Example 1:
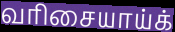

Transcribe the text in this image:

வரிசையாய்க்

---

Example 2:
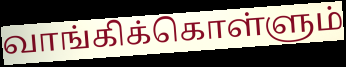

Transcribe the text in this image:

வாங்கிக்கொள்ளும்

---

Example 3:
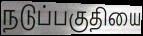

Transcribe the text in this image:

நடுப்பகுதியை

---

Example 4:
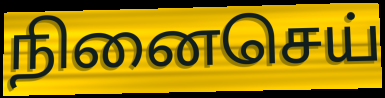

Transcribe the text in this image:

நினைசெய்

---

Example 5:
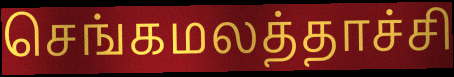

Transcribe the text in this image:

செங்கமலத்தாச்சி